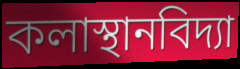
কলাস্থানবিদ্যা